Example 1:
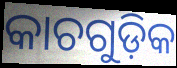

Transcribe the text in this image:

କାଚଗୁଡ଼ିକ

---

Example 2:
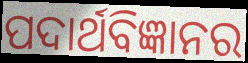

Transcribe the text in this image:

ପଦାର୍ଥବିଜ୍ଞାନର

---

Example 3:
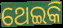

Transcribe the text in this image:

ଥେଇକି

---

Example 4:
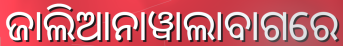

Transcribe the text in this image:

ଜାଲିଆନାୱାଲାବାଗରେ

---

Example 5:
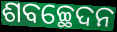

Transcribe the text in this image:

ଶବଚ୍ଛେଦନ